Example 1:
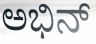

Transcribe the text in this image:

ಅಭಿನ್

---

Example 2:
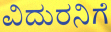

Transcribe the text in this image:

ವಿದುರನಿಗೆ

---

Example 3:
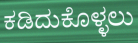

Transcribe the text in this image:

ಕಡಿದುಕೊಳ್ಳಲು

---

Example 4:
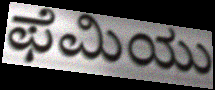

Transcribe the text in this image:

ಫೆಮಿಯು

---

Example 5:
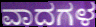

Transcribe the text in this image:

ವಾದಗಳ